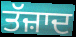
ਤੱਜ਼ਾਦ